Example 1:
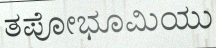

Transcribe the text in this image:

ತಪೋಭೂಮಿಯು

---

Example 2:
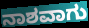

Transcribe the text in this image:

ನಾಶವಾಗು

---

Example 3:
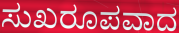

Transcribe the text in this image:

ಸುಖರೂಪವಾದ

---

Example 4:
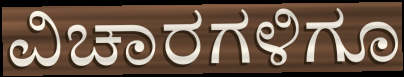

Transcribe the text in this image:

ವಿಚಾರಗಳಿಗೂ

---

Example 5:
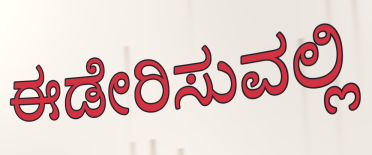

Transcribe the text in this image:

ಈಡೇರಿಸುವಲ್ಲಿ